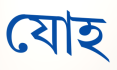
যোহ